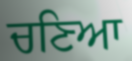
ਚਣਿਆ